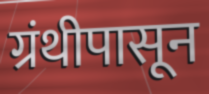
ग्रंथीपासून